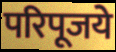
परिपूजये